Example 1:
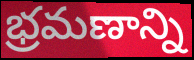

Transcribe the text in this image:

భ్రమణాన్ని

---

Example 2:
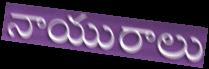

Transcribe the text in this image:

నాయురాలు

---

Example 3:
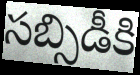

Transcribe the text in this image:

సబ్సిడీకి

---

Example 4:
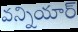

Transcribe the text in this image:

వన్నియార్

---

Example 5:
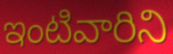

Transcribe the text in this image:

ఇంటివారిని